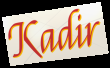
Kadir